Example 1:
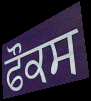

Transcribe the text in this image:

ਫੌਕਸ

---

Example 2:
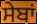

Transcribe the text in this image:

ਸੇਬਾਂ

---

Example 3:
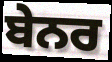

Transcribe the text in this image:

ਬੇਨਰ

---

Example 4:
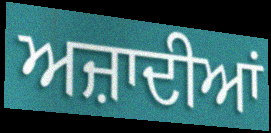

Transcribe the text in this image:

ਅਜ਼ਾਦੀਆਂ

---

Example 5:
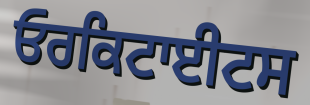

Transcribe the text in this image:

ਓਰਕਿਟਾਈਟਸ